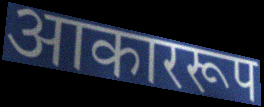
आकाररूप